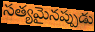
సత్యమైనప్పుడు